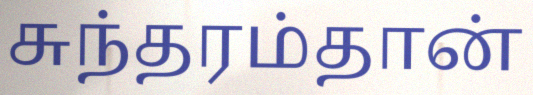
சுந்தரம்தான்